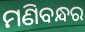
ମଣିବନ୍ଧର